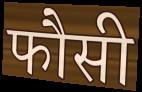
फौसी